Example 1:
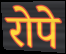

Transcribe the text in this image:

रोपे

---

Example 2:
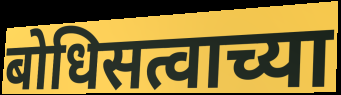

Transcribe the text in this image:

बोधिसत्वाच्या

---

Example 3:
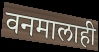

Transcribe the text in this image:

वनमालाही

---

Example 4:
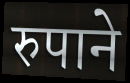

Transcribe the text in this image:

रुपाने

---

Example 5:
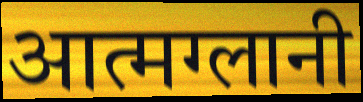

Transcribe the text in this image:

आत्मग्लानी